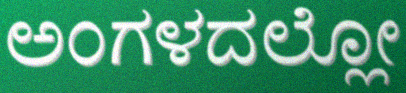
ಅಂಗಳದಲ್ಲೋ